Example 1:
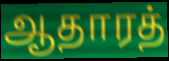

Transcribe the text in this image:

ஆதாரத்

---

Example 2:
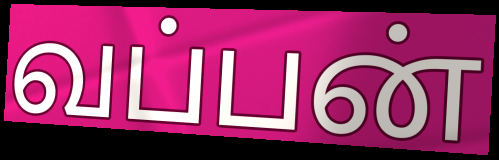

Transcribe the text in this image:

வப்பன்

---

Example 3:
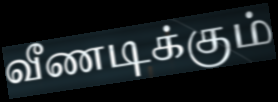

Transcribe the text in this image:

வீணடிக்கும்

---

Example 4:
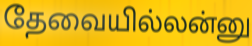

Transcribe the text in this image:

தேவையில்லன்னு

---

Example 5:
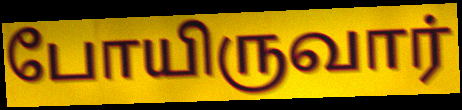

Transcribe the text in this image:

போயிருவார்